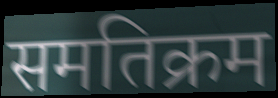
समतिक्रम